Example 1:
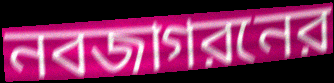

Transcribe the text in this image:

নবজাগরনের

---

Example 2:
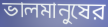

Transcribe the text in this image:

ভালমানুষের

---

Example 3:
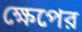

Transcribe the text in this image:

ক্ষেপের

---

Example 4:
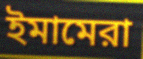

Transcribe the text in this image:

ইমামেরা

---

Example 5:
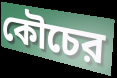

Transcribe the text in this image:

কৌচের